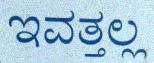
ಇವತ್ತಲ್ಲ